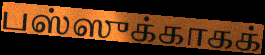
பஸ்ஸுக்காகக்